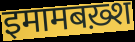
इमामबख़्श